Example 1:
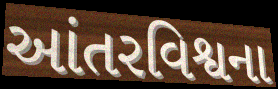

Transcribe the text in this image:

આંતરવિશ્વના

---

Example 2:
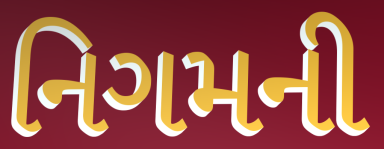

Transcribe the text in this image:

નિગમની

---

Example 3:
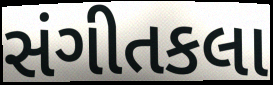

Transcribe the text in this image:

સંગીતકલા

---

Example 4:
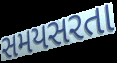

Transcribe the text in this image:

સમયસરતા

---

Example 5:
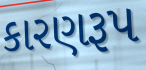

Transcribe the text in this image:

કારણરૂપ